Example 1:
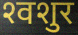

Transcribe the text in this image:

श्वशुर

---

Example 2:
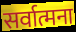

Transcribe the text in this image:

सर्वात्मना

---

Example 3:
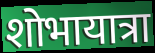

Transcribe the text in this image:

शोभायात्रा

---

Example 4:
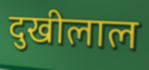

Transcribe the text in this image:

दुखीलाल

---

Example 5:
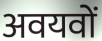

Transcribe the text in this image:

अवयवों